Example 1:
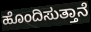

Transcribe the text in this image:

ಹೊಂದಿಸುತ್ತಾನೆ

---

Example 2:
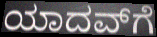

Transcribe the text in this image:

ಯಾದವ್‌ಗೆ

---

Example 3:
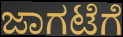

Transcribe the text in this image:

ಜಾಗಟೆಗೆ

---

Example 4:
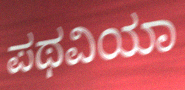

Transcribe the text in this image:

ಪಥವಿಯಾ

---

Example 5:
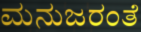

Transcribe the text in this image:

ಮನುಜರಂತೆ